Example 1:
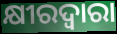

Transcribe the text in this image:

କ୍ଷୀରଦ୍ଵାରା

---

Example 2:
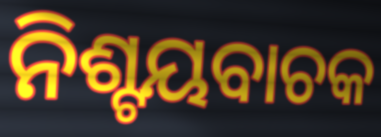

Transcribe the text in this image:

ନିଶ୍ଟୟବାଚକ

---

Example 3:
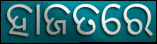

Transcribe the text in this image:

ହାଜତରେ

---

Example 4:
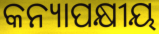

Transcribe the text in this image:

କନ୍ୟାପକ୍ଷୀୟ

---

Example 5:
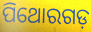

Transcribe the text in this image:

ପିଥୋରଗଡ଼